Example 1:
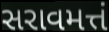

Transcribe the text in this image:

સરાવમત્તં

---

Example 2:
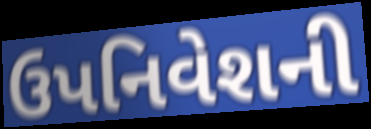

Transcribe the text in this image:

ઉપનિવેશની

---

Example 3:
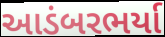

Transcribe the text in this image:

આડંબરભર્યા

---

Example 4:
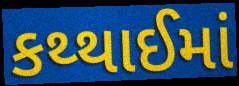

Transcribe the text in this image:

કથ્થાઈમાં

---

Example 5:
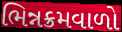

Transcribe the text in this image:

ભિન્નક્રમવાળો